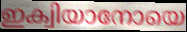
ഇക്വിയാനോയെ